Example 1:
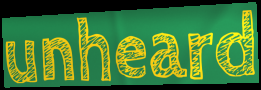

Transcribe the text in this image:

unheard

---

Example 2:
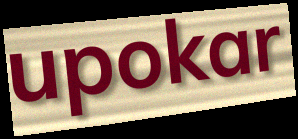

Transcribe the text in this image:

upokar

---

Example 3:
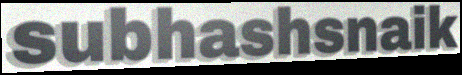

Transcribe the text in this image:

subhashsnaik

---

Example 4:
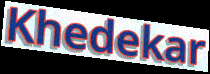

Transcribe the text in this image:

Khedekar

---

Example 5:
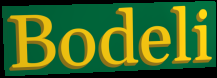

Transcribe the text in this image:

Bodeli